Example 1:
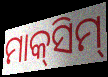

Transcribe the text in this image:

ମାକ୍‍ସିମ୍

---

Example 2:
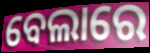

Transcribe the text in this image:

ବେଲାରେ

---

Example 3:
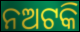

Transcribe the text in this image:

ନଅଟକି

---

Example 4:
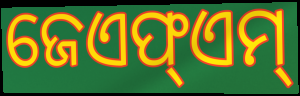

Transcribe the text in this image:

ଜେଏଫ୍ଏମ୍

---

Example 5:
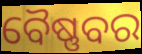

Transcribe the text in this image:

ବୈଷ୍ଣବର